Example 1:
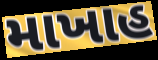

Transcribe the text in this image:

માખાહ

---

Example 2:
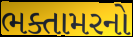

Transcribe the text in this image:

ભક્તામરનો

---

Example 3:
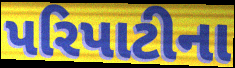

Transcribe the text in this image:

પરિપાટીના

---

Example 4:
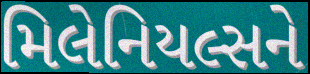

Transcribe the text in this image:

મિલેનિયલ્સને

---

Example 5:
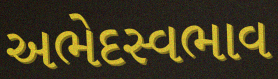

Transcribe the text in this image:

અભેદસ્વભાવ